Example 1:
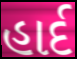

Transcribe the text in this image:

હાર્દ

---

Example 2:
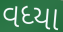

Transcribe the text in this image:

વધ્યા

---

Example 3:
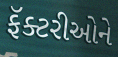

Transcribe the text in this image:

ફૅક્ટરીઓને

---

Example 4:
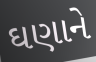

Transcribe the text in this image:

ઘણાને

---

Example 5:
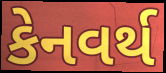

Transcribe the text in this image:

કેનવર્થ